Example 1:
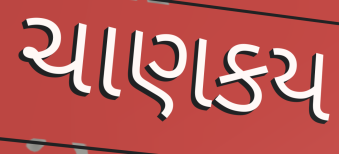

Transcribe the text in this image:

ચાણકય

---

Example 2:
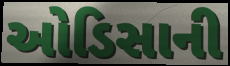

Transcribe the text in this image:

ઓડિસાની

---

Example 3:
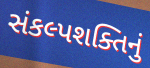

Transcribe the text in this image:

સંકલ્પશક્તિનું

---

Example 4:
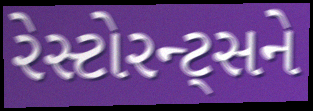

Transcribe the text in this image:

રેસ્ટોરન્ટ્સને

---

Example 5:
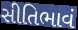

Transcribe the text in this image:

સીતિભાવં